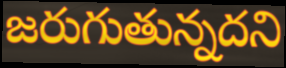
జరుగుతున్నదని